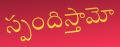
స్పందిస్తామో